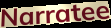
Narratee